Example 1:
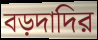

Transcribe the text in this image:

বড়দাদির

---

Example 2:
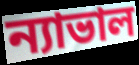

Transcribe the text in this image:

ন্যাভাল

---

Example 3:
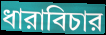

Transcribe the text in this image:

ধারাবিচার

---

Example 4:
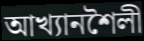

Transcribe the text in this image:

আখ্যানশৈলী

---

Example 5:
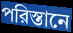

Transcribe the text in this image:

পরিস্তানে